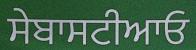
ਸੇਬਾਸਟੀਆਓ